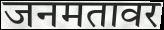
जनमतावर